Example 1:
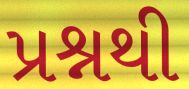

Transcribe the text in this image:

પ્રશ્નથી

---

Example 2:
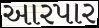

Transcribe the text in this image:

આરપાર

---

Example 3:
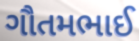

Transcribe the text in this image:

ગૌતમભાઈ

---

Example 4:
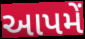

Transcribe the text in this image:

આપમેં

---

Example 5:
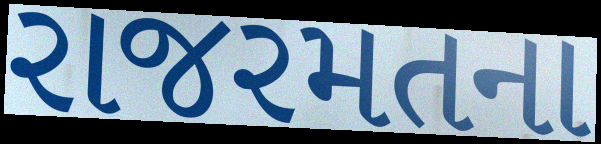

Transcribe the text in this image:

રાજરમતના